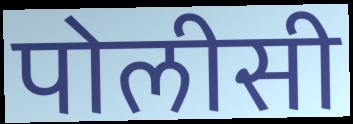
पोलीसी